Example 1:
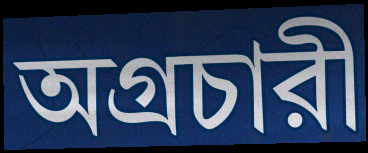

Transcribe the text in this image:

অগ্রচারী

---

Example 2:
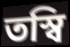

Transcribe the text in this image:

তস্বি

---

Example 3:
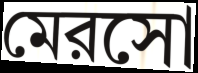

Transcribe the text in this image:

মেরসো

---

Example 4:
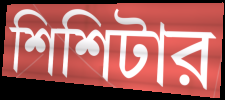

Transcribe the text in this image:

শিশিটার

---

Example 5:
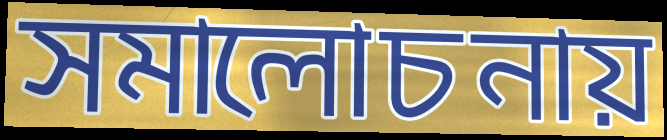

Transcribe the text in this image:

সমালোচনায়